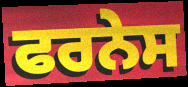
ਫਰਨੇਸ